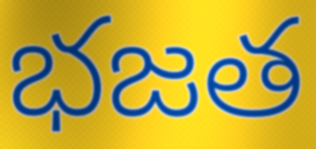
భజత